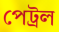
পেট্ৰল